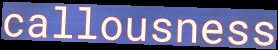
callousness